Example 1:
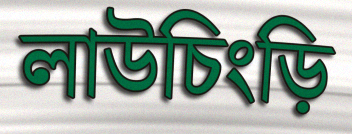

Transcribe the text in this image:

লাউচিংড়ি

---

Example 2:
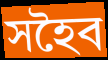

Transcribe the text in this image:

সহৈব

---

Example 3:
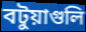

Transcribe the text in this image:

বটুয়াগুলি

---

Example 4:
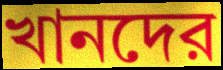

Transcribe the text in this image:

খানদের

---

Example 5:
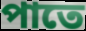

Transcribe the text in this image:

পাতে